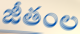
జీతంల